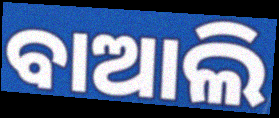
ବାଆଲି